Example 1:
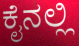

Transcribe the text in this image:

ಕೈನಲ್ಲಿ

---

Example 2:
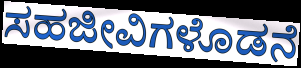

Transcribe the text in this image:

ಸಹಜೀವಿಗಳೊಡನೆ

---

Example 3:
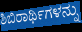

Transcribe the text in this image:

ಶಿಬಿರಾರ್ಥಿಗಳನ್ನು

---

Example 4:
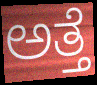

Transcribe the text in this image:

ಅತ್ತೆ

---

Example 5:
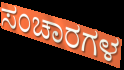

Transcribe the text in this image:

ಸಂಚಾರಗಳ